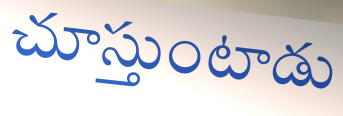
చూస్తుంటాడు